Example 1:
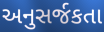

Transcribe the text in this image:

અનુસર્જકતા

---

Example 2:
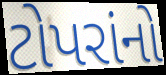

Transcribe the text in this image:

ટોપરાંનો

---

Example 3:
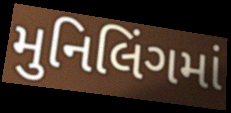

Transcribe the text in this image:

મુનિલિંગમાં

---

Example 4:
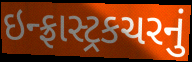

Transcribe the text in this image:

ઇન્ફ્રાસ્ટ્રકચરનું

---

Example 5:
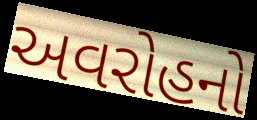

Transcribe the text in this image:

અવરોહનો